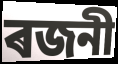
ৰজনী